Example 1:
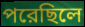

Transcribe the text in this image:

পরেছিলে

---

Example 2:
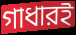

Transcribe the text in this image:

গাধারই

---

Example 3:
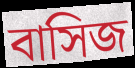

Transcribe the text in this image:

বাসিজ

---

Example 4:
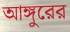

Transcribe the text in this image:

আঙ্গুরের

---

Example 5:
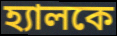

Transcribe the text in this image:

হ্যালকে